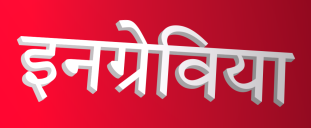
इनग्रेविया